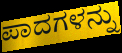
ಪಾದಗಳನ್ನು